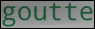
goutte